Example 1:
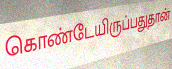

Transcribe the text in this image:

கொண்டேயிருப்பதுதான்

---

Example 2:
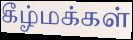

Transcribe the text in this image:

கீழ்மக்கள்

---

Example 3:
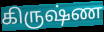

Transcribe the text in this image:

கிருஷ்ண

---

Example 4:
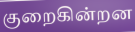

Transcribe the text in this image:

குறைகின்றன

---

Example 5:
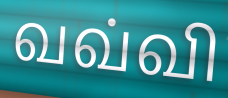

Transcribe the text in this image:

வவ்வி